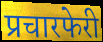
प्रचारफेरी